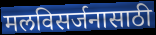
मलविसर्जनासाठी